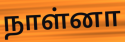
நாள்னா